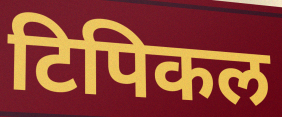
टिपिकल